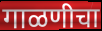
गाळणीचा